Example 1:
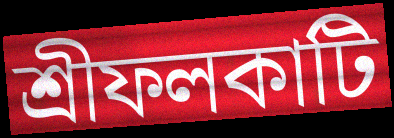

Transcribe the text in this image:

শ্রীফলকাটি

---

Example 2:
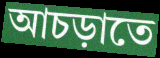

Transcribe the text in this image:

আচড়াতে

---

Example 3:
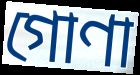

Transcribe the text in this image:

গোণা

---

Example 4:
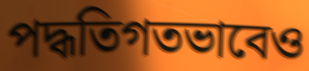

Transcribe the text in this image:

পদ্ধতিগতভাবেও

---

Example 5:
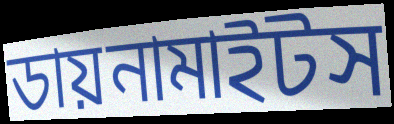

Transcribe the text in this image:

ডায়নামাইটস